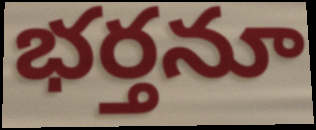
భర్తనూ